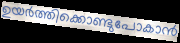
ഉയർത്തിക്കൊണ്ടുപോകാൻ